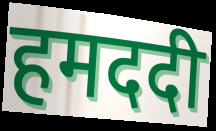
हमददी